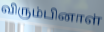
விரும்பினாள்